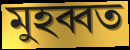
মুহব্বত